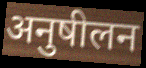
अनुषीलन